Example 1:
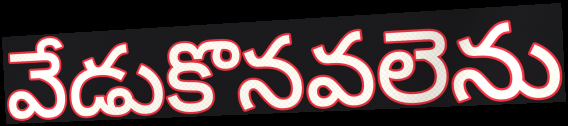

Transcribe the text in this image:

వేడుకొనవలెను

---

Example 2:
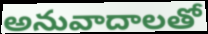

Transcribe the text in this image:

అనువాదాలతో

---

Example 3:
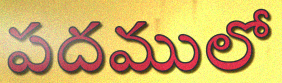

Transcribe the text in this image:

పదములో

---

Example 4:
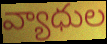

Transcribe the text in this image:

వ్యాధుల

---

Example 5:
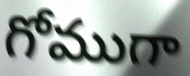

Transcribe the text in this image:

గోముగా